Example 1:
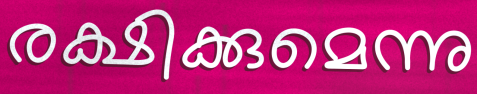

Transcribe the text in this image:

രക്ഷിക്കുമെന്നു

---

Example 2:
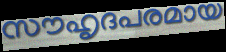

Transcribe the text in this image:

സൗഹൃദപരമായ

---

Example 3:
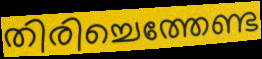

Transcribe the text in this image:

തിരിച്ചെത്തേണ്ട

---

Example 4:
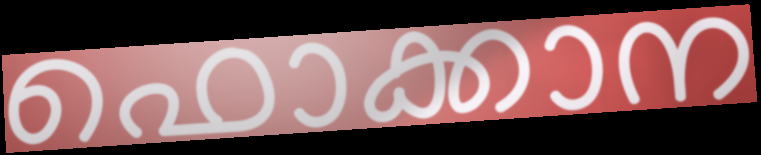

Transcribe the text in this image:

ഫൊക്കാന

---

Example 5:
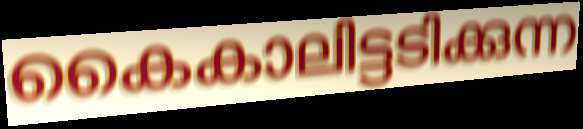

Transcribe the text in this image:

കൈകാലിട്ടടിക്കുന്ന